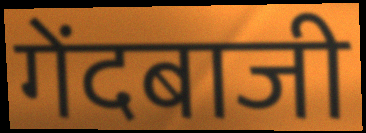
गेंदबाजी